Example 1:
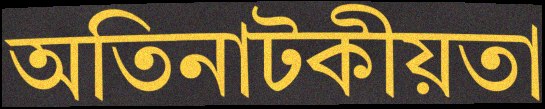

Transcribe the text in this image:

অতিনাটকীয়তা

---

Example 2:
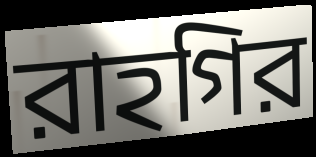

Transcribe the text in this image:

রাহগির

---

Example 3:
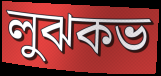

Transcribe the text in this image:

লুঝকভ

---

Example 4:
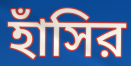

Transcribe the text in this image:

হাঁসির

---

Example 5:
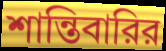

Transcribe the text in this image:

শান্তিবারির